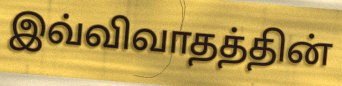
இவ்விவாதத்தின்